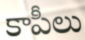
కాపీలు